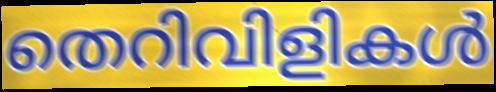
തെറിവിളികൾ